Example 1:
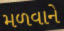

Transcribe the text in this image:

મળવાને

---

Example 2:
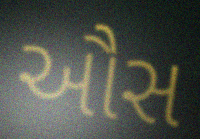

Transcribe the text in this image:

ઔસ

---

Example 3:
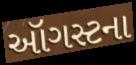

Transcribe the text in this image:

ઑગસ્ટના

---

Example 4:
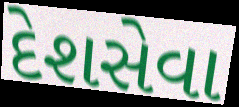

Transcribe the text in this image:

દેશસેવા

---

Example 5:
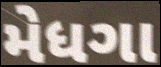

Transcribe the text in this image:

મેધગા